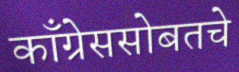
काँग्रेससोबतचे